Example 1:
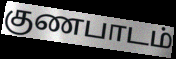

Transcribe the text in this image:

குணபாடம்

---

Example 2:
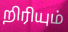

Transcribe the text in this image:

றிரியும்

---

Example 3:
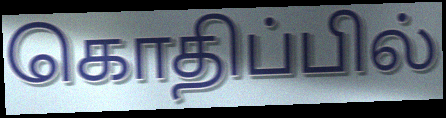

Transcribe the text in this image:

கொதிப்பில்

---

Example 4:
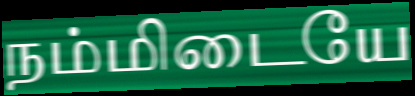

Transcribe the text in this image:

நம்மிடையே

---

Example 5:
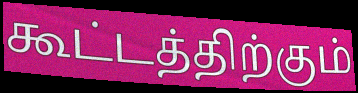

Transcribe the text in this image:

கூட்டத்திற்கும்